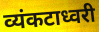
व्यंकटाध्वरी